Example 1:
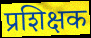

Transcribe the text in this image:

प्रशिक्षक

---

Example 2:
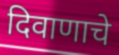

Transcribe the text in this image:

दिवाणाचे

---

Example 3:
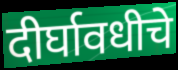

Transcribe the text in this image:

दीर्घावधीचे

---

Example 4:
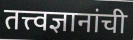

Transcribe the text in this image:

तत्त्वज्ञानांची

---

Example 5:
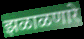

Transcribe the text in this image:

झळाळणारे